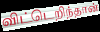
விட்டெறிந்தான்